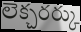
లెక్చరర్కు